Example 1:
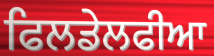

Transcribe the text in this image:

ਫਿਲਡੇਲਫੀਆ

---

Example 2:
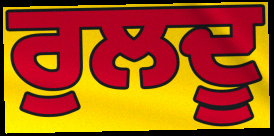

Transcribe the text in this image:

ਰੁਲਦੂ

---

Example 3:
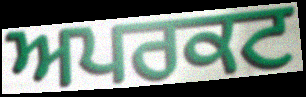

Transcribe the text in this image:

ਅਪਰਕਟ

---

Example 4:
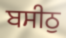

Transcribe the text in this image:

ਬਸੀਠੁ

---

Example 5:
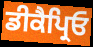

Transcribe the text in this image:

ਡੀਕੈਪ੍ਰਿਓ